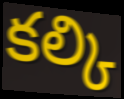
కల్కి